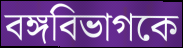
বঙ্গবিভাগকে